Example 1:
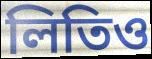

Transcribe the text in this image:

লিতিও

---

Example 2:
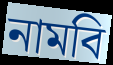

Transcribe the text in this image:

নামবি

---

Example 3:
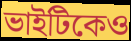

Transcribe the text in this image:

ভাইটিকেও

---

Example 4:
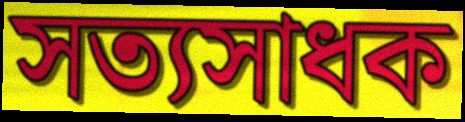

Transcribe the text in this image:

সত্যসাধক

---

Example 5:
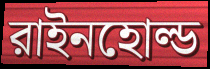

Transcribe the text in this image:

রাইনহোল্ড